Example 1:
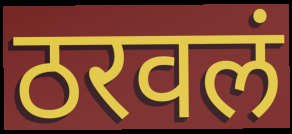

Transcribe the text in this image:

ठरवलं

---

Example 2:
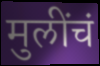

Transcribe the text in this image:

मुलींचं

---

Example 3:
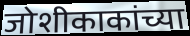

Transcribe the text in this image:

जोशीकाकांच्या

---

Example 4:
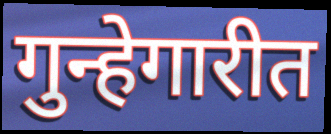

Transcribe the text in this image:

गुन्हेगारीत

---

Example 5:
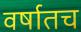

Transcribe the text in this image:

वर्षातच